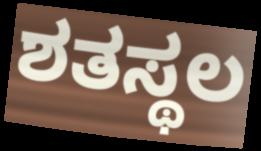
ಶತಸ್ಥಲ